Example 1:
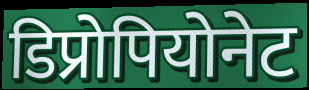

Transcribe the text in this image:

डिप्रोपियोनेट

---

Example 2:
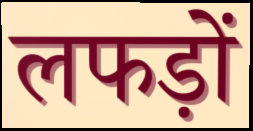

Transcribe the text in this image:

लफड़ों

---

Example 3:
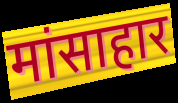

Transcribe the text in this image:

मांसाहार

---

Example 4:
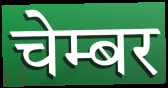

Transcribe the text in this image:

चेम्बर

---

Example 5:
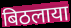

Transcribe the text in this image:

बिठलाया